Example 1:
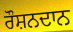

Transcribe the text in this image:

ਰੌਸ਼ਨਦਾਨ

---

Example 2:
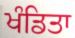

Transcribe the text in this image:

ਖੰਡਿਤਾ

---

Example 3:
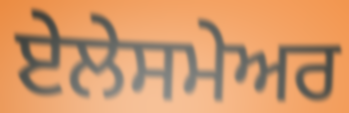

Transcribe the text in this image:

ਏਲੇਸਮੇਅਰ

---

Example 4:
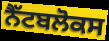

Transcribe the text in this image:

ਨੈੱਟਬਲੋਕਸ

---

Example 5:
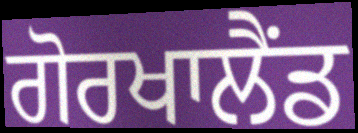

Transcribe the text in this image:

ਗੋਰਖਾਲੈਂਡ